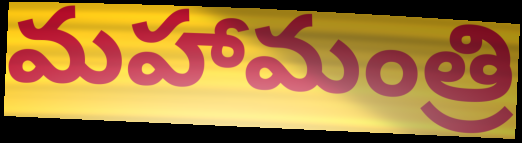
మహామంత్రి